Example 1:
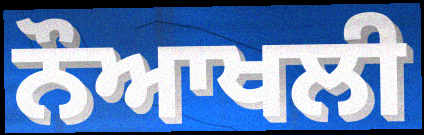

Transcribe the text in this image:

ਨੌਆਖਲੀ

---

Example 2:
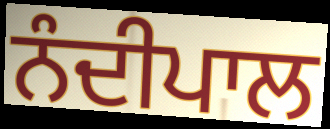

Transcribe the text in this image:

ਨੰਦੀਪਾਲ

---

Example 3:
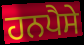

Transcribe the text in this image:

ਹਨਪੈਸੇ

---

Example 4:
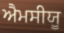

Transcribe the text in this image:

ਐਮਸੀਯੂ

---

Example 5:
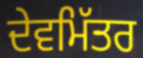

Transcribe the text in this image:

ਦੇਵਮਿੱਤਰ